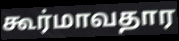
கூர்மாவதார